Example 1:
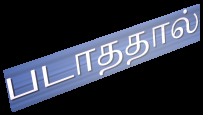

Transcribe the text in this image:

படாததால்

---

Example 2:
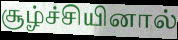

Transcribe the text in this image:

சூழ்ச்சியினால்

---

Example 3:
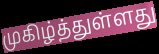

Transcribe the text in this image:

முகிழ்த்துள்ளது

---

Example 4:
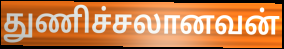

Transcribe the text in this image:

துணிச்சலானவன்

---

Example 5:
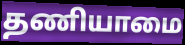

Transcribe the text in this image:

தணியாமை